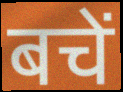
बचें